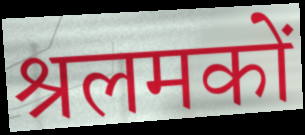
श्रलमकों